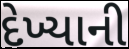
દેખ્યાની